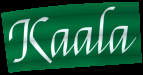
Kaala